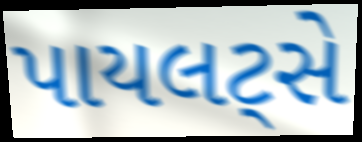
પાયલટ્સે